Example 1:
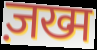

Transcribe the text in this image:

ज़ख्म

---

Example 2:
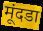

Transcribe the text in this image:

मूंदडा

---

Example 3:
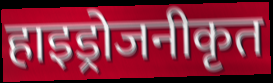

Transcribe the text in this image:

हाइड्रोजनीकृत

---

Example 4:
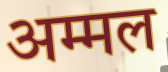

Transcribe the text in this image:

अम्मल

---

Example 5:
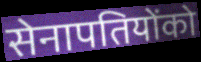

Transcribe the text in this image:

सेनापतियोंको